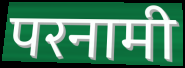
परनामी